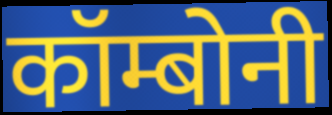
कॉम्बोनी